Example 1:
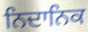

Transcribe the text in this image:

ਨਿਦਾਨਿਕ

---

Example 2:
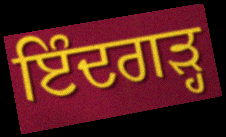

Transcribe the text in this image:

ਇੰਦਗੜ੍ਹ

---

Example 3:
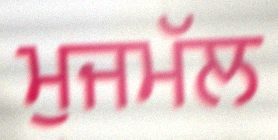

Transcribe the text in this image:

ਮੁਜਮੱਲ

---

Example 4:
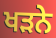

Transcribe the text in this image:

ਖੜਨੇ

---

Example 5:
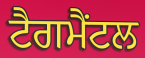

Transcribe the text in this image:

ਟੈਗਮੈਂਟਲ